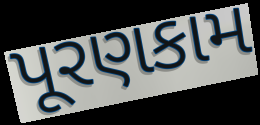
પૂરણકામ